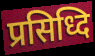
प्रसिध्दि